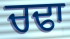
ਚਢਾ